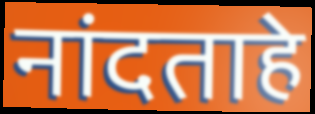
नांदताहे